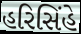
હરિસિંહે